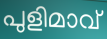
പുളിമാവ്